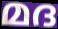
മദ